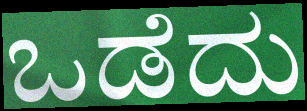
ಒಡೆದು